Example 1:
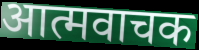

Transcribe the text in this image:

आत्मवाचक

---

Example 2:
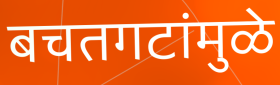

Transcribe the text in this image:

बचतगटांमुळे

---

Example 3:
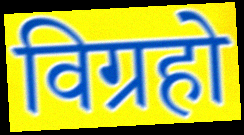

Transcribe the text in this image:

विग्रहो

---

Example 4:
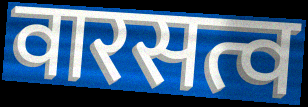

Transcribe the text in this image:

वारसत्व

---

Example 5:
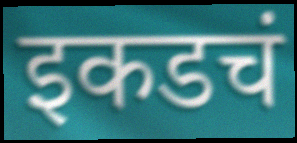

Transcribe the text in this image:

इकडचं